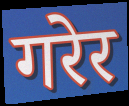
गरेर